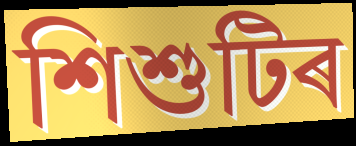
শিশুটিৰ